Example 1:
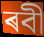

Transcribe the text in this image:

ৰবী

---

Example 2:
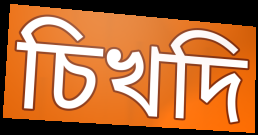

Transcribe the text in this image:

চিখদি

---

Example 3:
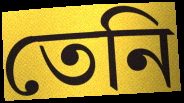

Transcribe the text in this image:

তেনি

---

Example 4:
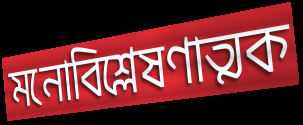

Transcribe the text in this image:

মনোবিশ্লেষণাত্মক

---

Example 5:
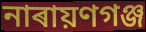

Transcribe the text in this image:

নাৰায়ণগঞ্জ